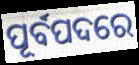
ପୂର୍ବପଦରେ